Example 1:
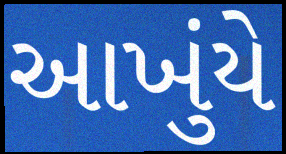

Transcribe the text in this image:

આખુંયે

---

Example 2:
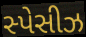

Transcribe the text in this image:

સ્પેસીઝ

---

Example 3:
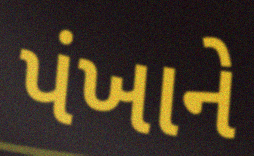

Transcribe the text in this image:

પંખાને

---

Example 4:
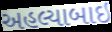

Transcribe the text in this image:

અહલ્યાબાઇ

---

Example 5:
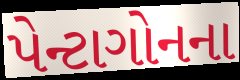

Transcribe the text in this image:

પેન્ટાગોનના